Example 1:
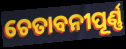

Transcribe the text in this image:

ଚେତାବନୀପୂର୍ଣ୍ଣ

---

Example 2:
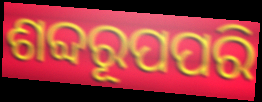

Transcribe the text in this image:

ଶବ୍ଦରୂପପରି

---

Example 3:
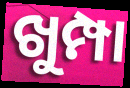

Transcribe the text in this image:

ଖୁମ୍ପା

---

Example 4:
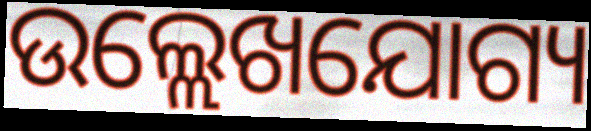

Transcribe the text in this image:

ଉଲ୍ଲେଖଯୋଗ୍ୟ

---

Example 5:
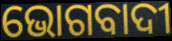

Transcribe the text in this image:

ଭୋଗବାଦୀ